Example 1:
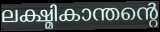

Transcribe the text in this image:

ലക്ഷ്മികാന്തന്റെ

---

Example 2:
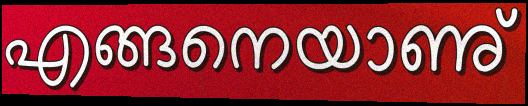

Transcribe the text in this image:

എങ്ങനെയാണു്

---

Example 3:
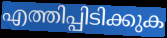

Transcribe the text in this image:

എത്തിപ്പിടിക്കുക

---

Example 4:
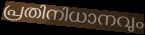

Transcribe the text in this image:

പ്രതിനിധാനവും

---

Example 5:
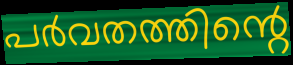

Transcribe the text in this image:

പർവതത്തിന്റെ